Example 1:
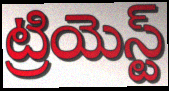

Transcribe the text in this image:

ట్రియెస్ట్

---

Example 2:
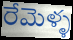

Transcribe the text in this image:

రేమెళ్ళ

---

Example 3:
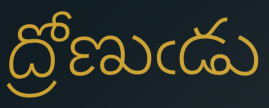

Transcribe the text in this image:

ద్రోణుఁడు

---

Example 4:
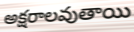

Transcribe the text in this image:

అక్షరాలవుతాయి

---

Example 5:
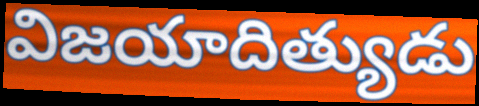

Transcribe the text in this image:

విజయాదిత్యుడు